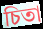
চিতা